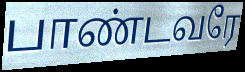
பாண்டவரே